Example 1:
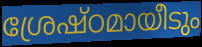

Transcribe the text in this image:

ശ്രേഷ്ഠമായീടും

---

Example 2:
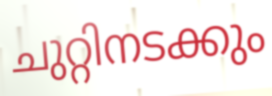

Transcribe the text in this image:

ചുറ്റിനടക്കും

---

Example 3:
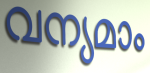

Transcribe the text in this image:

വന്യമാം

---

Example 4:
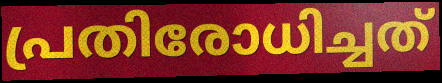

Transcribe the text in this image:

പ്രതിരോധിച്ചത്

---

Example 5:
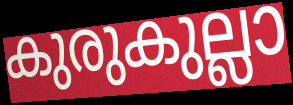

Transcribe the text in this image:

കുരുകുല്ലാ